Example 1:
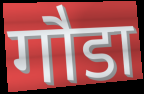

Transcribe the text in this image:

गौडा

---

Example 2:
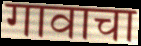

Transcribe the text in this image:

गावाचा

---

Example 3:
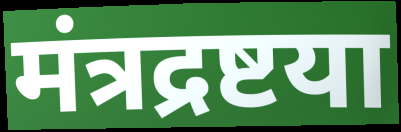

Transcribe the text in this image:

मंत्रद्रष्टया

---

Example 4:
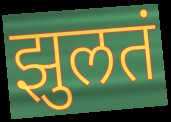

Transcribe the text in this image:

झुलतं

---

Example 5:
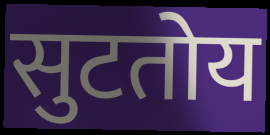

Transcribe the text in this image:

सुटतोय